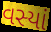
વસ્યાં